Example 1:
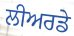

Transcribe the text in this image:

ਲੀਅਰਡੇ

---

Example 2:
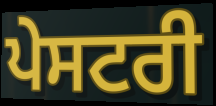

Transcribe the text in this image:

ਪੇਸਟਰੀ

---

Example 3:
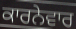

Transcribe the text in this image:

ਕਾਰਨੇਵਾਰ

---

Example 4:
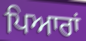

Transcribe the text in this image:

ਪਿਆਰਾਂ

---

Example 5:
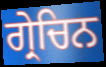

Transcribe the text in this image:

ਗ੍ਰੇਚਿਨ